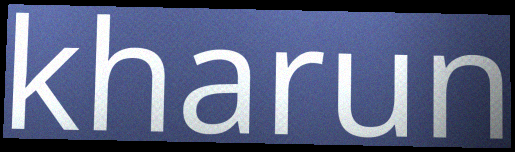
kharun